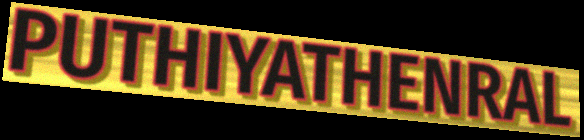
PUTHIYATHENRAL